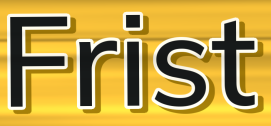
Frist